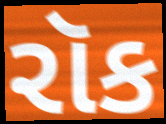
રૉક